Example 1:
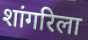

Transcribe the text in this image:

शांगरिला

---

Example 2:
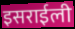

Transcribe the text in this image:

इसराईली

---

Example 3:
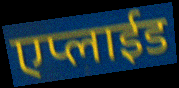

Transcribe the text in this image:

एप्लाईड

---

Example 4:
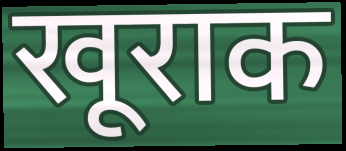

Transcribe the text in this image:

खूराक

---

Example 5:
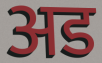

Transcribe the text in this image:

अड